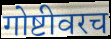
गोष्टीवरच